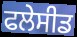
ਫਲੇਸੀਡ